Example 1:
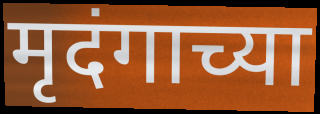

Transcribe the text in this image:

मृदंगाच्या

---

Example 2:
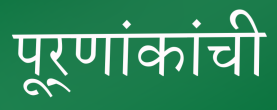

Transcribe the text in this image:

पूर्णांकांची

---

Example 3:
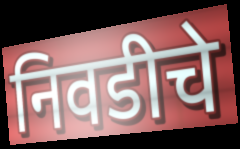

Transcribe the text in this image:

निवडीचे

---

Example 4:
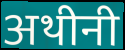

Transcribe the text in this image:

अथीनी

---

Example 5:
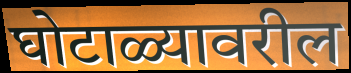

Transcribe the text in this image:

घोटाळ्यावरील